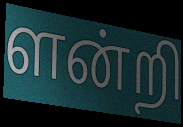
ளன்றி